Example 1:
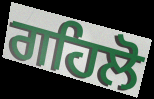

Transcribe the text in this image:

ਗਹਿਲੋ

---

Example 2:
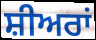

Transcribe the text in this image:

ਸ਼ੀਅਰਾਂ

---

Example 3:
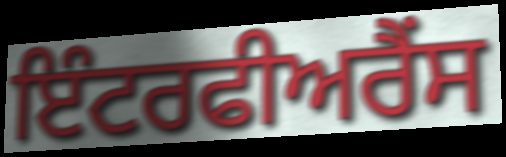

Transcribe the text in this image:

ਇੰਟਰਫੀਅਰੈਂਸ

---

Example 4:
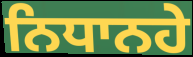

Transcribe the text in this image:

ਨਿਧਾਨਹੇ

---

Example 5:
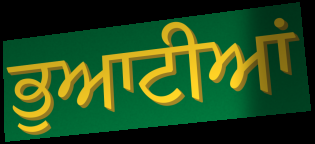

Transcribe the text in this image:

ਭੁਆਟੀਆਂ